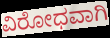
ವಿರೋಧವಾಗಿ